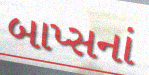
બાપ્સનાં